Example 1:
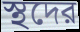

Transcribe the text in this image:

স্থদের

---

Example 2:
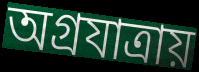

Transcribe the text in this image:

অগ্রযাত্রায়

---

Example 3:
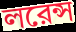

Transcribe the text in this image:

লরেন্স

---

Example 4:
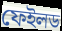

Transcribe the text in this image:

ফেইলড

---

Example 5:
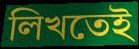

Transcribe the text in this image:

লিখতেই